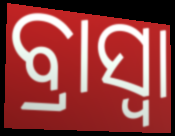
ବ୍ରାସ୍ବା